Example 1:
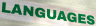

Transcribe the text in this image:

LANGUAGES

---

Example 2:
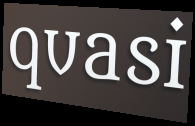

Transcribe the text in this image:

quasi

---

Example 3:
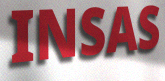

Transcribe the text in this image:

INSAS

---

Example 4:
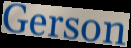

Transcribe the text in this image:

Gerson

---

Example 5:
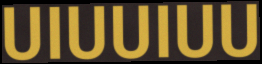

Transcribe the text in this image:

UIUUIUU